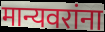
मान्यवरांना